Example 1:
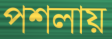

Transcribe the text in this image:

পশলায়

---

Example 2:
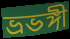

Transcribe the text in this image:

ভ্রভঙ্গী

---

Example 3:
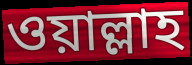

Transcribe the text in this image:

ওয়াল্লাহ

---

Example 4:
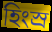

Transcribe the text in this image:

হিংস্র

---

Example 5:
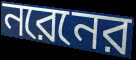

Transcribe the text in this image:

নরেনের